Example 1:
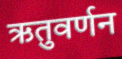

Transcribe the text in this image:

ऋतुवर्णन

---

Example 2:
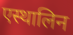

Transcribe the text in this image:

एस्थालिन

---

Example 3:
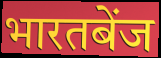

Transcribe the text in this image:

भारतबेंज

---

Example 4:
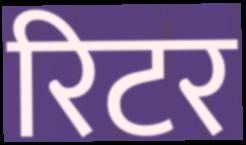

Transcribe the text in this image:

रिटर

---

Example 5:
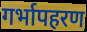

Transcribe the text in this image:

गर्भापहरण